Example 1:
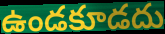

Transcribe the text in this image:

ఉండకూడదు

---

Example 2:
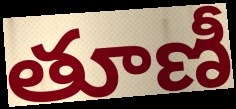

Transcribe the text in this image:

తూణీ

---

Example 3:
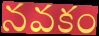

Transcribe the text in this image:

నవకం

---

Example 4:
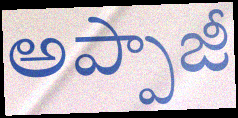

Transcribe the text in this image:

అప్పాజీ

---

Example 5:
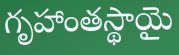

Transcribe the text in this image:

గృహాంతస్థాయై